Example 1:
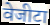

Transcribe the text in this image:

वेजीटा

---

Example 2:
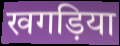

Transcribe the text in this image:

खगड़िया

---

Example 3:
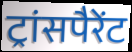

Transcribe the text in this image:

ट्रांसपैरेंट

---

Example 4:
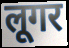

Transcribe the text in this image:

लूगर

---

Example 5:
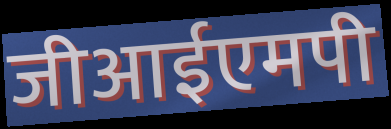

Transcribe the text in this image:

जीआईएमपी